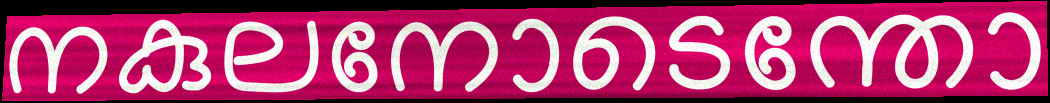
നകുലനോടെന്തോ